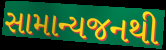
સામાન્યજનથી